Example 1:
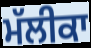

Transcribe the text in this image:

ਮੱਲੀਕਾ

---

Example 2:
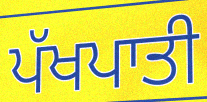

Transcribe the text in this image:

ਪੱਖਪਾਤੀ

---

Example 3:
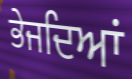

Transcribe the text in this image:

ਭੇਜਦਿਆਂ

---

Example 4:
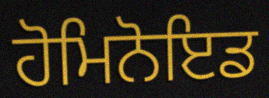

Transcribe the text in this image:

ਹੋਮਿਨੋਇਡ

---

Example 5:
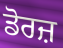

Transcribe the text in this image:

ਡੋਰਜ਼